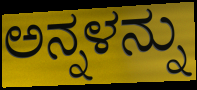
ಅನ್ನಳನ್ನು